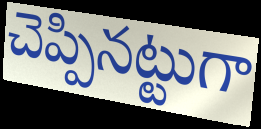
చెప్పినట్టుగా